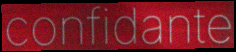
confidante